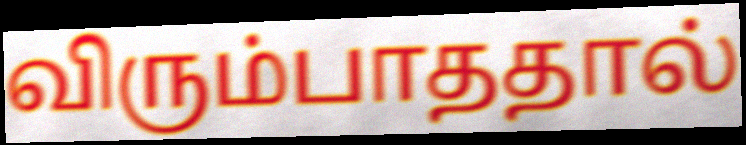
விரும்பாததால்